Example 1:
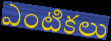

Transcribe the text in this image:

ఎంటికలు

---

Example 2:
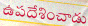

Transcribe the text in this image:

ఉపదేశించాడు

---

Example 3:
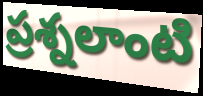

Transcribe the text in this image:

ప్రశ్నలాంటి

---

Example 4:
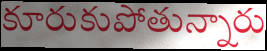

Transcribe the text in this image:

కూరుకుపోతున్నారు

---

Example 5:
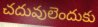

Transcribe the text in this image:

చదువులెందుకు